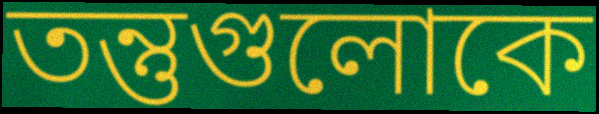
তন্তুগুলোকে